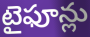
టైఫూన్లు